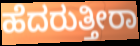
ಹೆದರುತ್ತೀರಾ